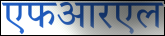
एफआरएल